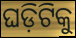
ଘଡ଼ିଟିକୁ